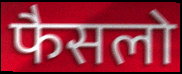
फैसलो